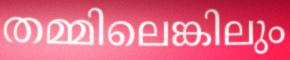
തമ്മിലെങ്കിലും